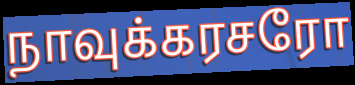
நாவுக்கரசரோ